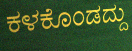
ಕಳಕೊಂಡದ್ದು